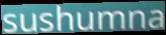
sushumna